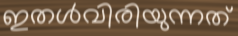
ഇതൾവിരിയുന്നത്